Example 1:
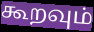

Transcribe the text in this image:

கூறவும்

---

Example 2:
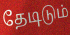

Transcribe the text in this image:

தேடிடும்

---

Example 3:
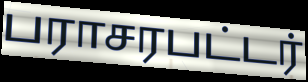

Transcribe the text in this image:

பராசரபட்டர்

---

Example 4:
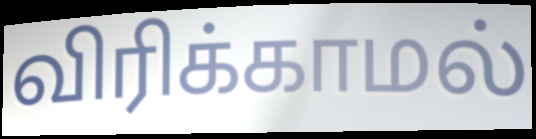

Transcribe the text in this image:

விரிக்காமல்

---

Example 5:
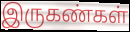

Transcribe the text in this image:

இருகண்கள்